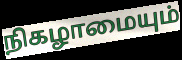
நிகழாமையும்